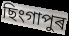
ছিংগাপুৰ